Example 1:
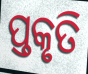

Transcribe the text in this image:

ପ୍ତକୃତି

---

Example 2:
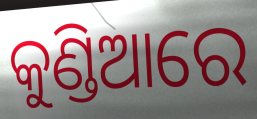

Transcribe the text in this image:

କୁଣ୍ଡିଆରେ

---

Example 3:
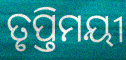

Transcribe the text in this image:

ତୃପ୍ତିମୟୀ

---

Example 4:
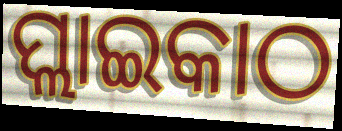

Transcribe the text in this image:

ପ୍ଲାଇକାଠ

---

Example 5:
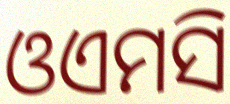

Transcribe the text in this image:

ଓଏମସି